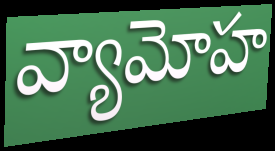
వ్యామోహ